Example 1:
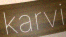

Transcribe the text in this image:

karvi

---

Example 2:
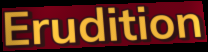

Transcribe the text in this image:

Erudition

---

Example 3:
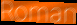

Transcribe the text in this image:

Roman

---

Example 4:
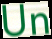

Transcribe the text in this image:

Un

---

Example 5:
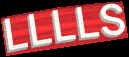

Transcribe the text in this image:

LLLLS